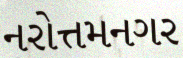
નરોત્તમનગર